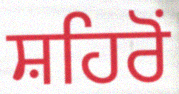
ਸ਼ਹਿਰੋਂ